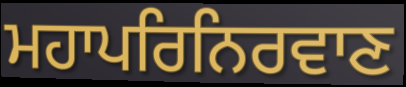
ਮਹਾਪਰਿਨਿਰਵਾਣ